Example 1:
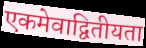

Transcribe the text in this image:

एकमेवाद्वितीयता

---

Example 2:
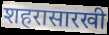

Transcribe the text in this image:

शहरासारखी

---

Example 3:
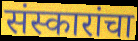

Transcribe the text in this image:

संस्कारांचा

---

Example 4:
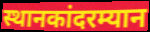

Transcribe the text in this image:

स्थानकांदरम्यान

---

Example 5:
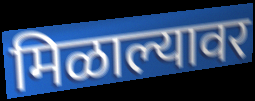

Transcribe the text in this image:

मिळाल्यावर